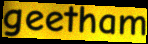
geetham